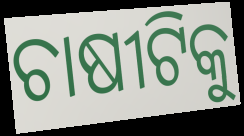
ଚାଷୀଟିକୁ